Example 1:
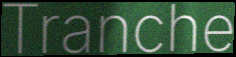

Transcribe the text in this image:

Tranche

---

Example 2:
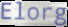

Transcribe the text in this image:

Elorg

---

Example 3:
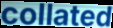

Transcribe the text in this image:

collated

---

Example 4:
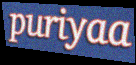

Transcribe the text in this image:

puriyaa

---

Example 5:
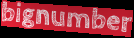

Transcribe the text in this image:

bignumber